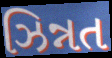
ઝિન્નત